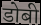
डोबी